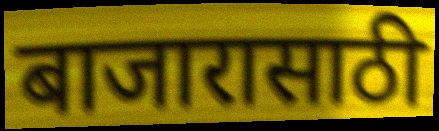
बाजारासाठी